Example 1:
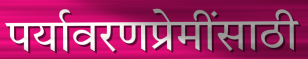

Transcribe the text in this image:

पर्यावरणप्रेमींसाठी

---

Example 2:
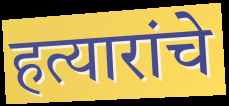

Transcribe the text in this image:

हत्यारांचे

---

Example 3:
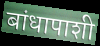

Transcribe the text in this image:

बांधापाशी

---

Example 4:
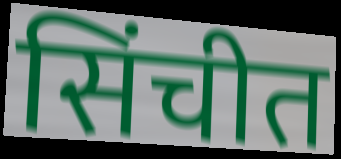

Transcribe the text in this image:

सिंचीत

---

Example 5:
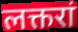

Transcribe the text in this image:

लक्तरां